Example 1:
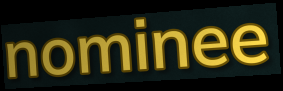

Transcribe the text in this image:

nominee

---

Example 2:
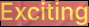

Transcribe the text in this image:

Exciting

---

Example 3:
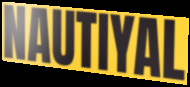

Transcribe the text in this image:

NAUTIYAL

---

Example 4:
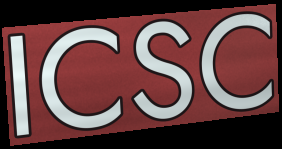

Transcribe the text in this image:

ICSC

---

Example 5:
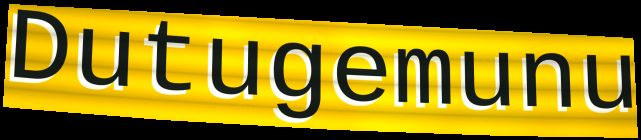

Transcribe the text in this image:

Dutugemunu